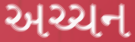
અચ્ચન